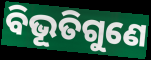
ବିଭୂତିଗୁଣେ